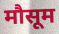
मौसूम